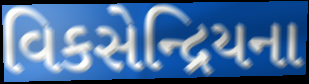
વિકસેન્દ્રિયના